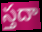
స్తదా